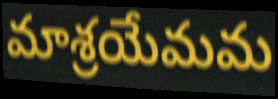
మాశ్రయేమమ